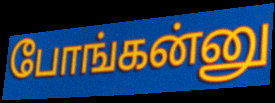
போங்கன்னு